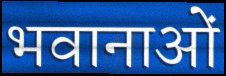
भवानाओं